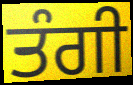
ਤੰਗੀ